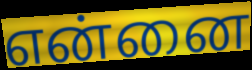
என்னை